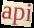
api